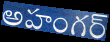
అహంగర్